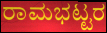
ರಾಮಭಟ್ಟರ